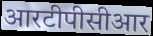
आरटीपीसीआर